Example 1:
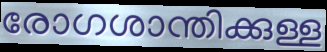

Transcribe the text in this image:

രോഗശാന്തിക്കുള്ള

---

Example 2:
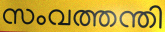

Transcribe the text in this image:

സംവത്തന്തി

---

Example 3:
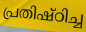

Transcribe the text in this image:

പ്രതിഷ്ഠിച്ച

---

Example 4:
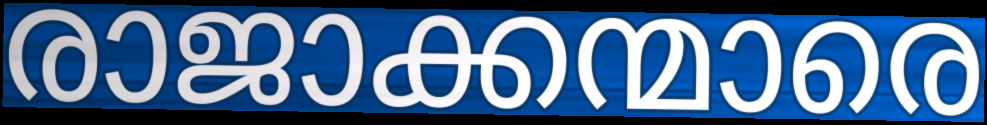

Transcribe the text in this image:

രാജാക്കന്മാരെ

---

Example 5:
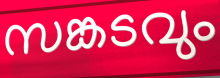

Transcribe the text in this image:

സങ്കടവും